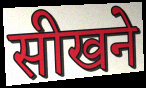
सीखने